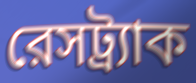
রেসট্র্যাক